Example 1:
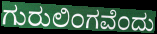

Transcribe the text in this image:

ಗುರುಲಿಂಗವೆಂದು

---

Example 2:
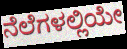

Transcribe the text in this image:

ನೆಲೆಗಳಲ್ಲಿಯೇ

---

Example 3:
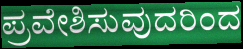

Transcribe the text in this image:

ಪ್ರವೇಶಿಸುವುದರಿಂದ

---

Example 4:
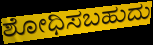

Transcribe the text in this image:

ಶೋಧಿಸಬಹುದು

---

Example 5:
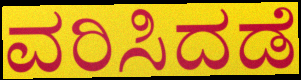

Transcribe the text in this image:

ವರಿಸಿದಡೆ